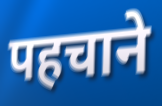
पहचाने